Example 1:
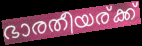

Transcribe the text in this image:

ഭാരതീയര്ക്ക്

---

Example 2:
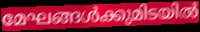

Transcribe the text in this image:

മേഘങ്ങൾക്കുമിടയിൽ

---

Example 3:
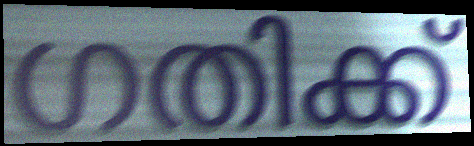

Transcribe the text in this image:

ഗതിക്ക്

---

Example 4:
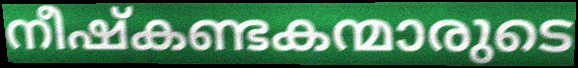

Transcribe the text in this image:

നീഷ്കണ്ടകന്മാരുടെ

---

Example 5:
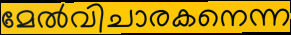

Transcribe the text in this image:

മേൽവിചാരകനെന്ന